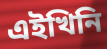
এইখিনি